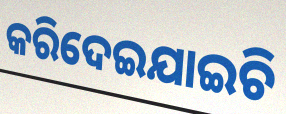
କରିଦେଇଯାଇଚି